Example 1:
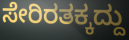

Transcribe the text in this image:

ಸೇರಿರತಕ್ಕದ್ದು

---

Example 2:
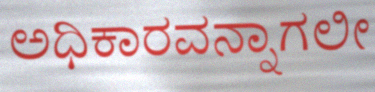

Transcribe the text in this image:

ಅಧಿಕಾರವನ್ನಾಗಲೀ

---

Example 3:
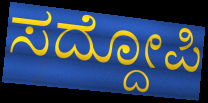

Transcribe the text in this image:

ಸದ್ದೋಪಿ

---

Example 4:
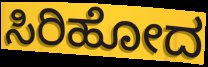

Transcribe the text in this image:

ಸಿರಿಹೋದ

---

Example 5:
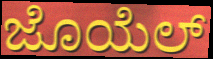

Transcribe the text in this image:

ಜೊಯೆಲ್